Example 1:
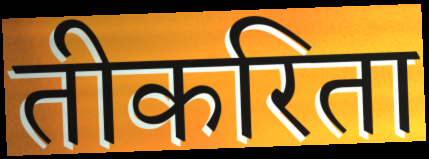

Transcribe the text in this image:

तीकरिता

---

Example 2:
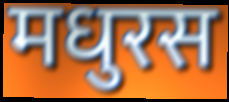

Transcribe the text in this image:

मधुरस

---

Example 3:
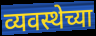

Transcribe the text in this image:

व्यवस्थेच्या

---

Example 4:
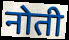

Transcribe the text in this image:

नोती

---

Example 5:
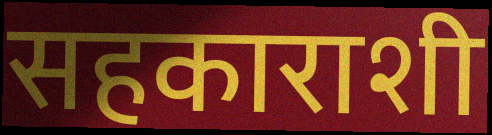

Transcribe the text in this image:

सहकाराशी